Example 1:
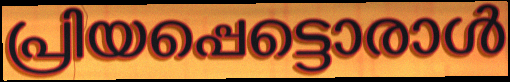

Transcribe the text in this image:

പ്രിയപ്പെട്ടൊരാൾ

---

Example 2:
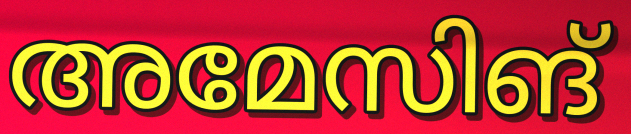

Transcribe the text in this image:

അമേസിങ്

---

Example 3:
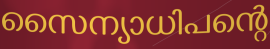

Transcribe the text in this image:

സൈന്യാധിപന്റെ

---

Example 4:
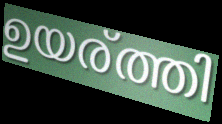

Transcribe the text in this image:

ഉയര്ത്തി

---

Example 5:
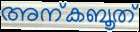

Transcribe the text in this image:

അന്കബൂത്